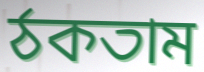
ঠকতাম